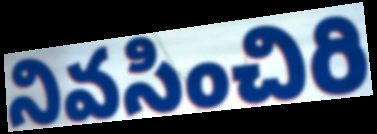
నివసించిరి